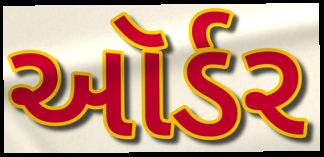
ઑર્ડર